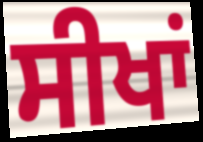
ਸੀਖਾਂ